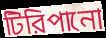
টিরিপানো